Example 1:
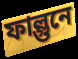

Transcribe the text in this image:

ফাল্গুনে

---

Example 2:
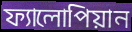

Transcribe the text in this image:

ফ্যালোপিয়ান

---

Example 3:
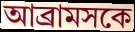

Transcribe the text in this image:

আব্রামসকে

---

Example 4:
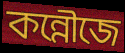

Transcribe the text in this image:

কন্নৌজে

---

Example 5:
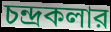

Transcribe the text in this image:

চন্দ্রকলার